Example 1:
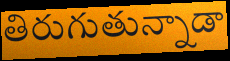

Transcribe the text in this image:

తిరుగుతున్నాడా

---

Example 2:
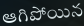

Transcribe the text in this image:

ఆగిపోయిన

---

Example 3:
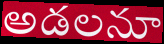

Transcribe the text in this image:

అడలనూ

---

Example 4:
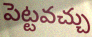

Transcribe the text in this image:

పెట్టవచ్చు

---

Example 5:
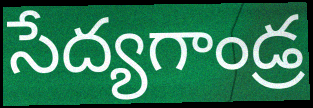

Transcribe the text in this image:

సేద్యగాండ్ర